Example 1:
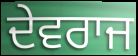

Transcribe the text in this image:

ਦੇਵਰਾਜ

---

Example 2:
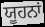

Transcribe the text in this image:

ਯੂਹਨਾਂ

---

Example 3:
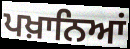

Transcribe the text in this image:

ਪਖ਼ਾਨਿਆਂ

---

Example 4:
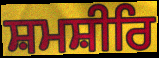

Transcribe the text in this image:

ਸ਼ਮਸ਼ੀਰਿ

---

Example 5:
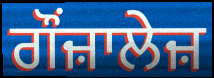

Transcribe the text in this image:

ਗੌਂਜ਼ਾਲੇਜ਼